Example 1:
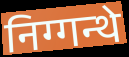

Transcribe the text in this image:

निग्गन्थे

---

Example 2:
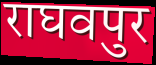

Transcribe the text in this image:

राघवपुर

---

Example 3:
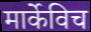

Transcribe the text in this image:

मार्केविच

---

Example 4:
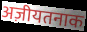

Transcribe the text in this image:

अज़ीयतनाक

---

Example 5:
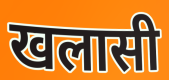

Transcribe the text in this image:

खलासी